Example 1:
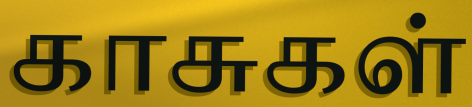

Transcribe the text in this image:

காசுகள்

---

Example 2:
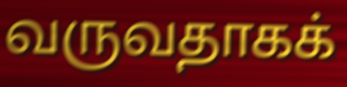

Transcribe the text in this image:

வருவதாகக்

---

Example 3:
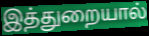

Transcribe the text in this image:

இத்துறையால்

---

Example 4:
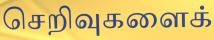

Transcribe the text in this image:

செறிவுகளைக்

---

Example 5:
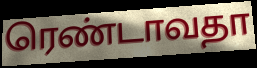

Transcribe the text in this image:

ரெண்டாவதா